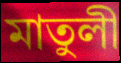
মাতুলী